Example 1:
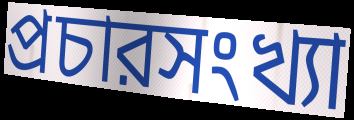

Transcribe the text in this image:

প্রচারসংখ্যা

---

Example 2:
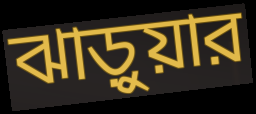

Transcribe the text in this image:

ঝাড়ুয়ার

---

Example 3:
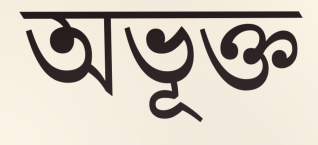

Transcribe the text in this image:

অভূক্ত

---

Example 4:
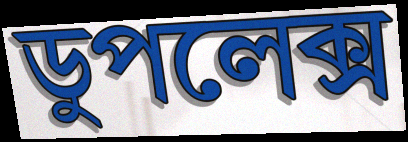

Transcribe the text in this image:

ডুপলেক্স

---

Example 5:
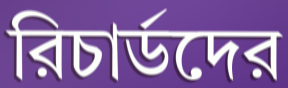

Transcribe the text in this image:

রিচার্ডদের